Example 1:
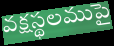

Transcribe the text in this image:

వక్షస్థలముపై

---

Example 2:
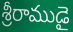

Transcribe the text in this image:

శ్రీరాముడై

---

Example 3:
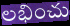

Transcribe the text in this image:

లభించు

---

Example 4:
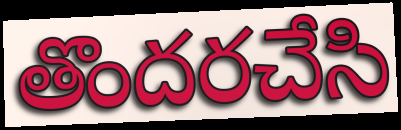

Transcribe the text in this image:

తొందరచేసి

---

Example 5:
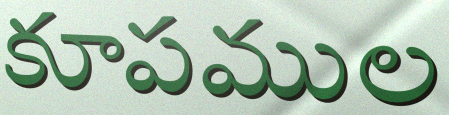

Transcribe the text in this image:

కూపముల